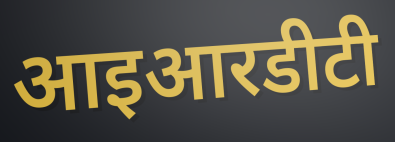
आइआरडीटी